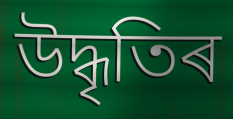
উদ্ধৃতিৰ